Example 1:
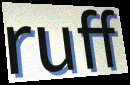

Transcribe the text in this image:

ruff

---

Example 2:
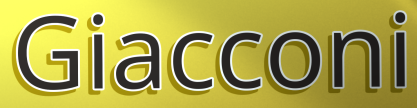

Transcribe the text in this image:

Giacconi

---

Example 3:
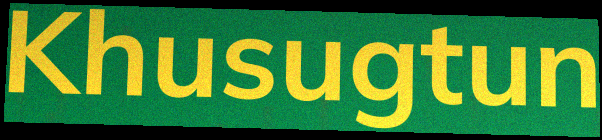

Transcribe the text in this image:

Khusugtun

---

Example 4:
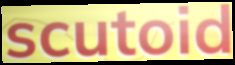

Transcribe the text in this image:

scutoid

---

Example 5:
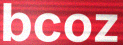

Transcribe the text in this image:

bcoz